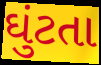
ઘુંટતા